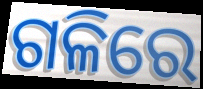
ଗଳିରେ